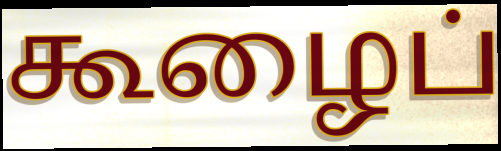
கூழைப்